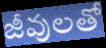
జీవులతో